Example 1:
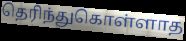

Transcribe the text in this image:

தெரிந்துகொள்ளாத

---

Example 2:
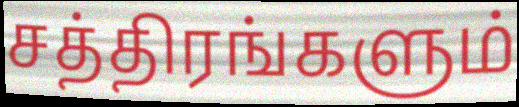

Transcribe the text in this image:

சத்திரங்களும்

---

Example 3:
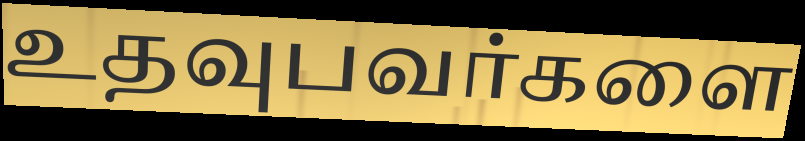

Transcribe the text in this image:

உதவுபவர்களை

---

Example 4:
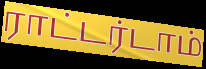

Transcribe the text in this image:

ராட்டர்டாம்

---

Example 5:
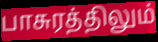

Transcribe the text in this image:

பாசுரத்திலும்